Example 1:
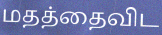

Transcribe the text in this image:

மதத்தைவிட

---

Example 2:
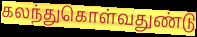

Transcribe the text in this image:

கலந்துகொள்வதுண்டு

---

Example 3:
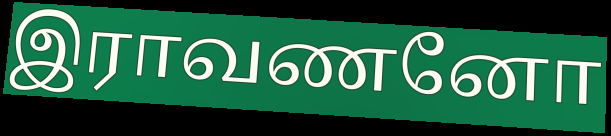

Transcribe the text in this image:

இராவணனோ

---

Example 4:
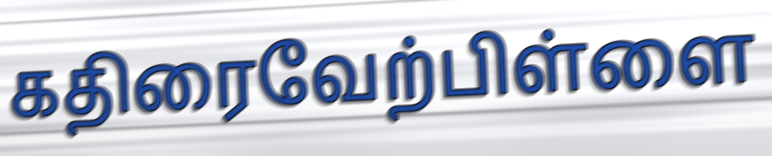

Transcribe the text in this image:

கதிரைவேற்பிள்ளை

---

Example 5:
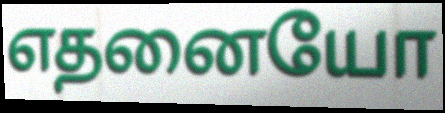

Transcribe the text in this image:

எதனையோ